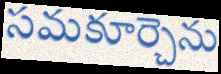
సమకూర్చెను